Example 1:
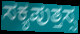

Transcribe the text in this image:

ಸಕ್ಯಪುತ್ತಸ್ಸ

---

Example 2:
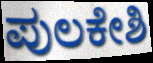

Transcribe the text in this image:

ಪುಲಕೇಶಿ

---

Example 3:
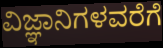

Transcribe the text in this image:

ವಿಜ್ಞಾನಿಗಳವರೆಗೆ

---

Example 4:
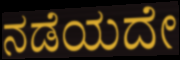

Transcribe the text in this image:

ನಡೆಯದೇ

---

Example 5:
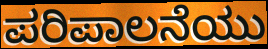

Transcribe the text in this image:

ಪರಿಪಾಲನೆಯು